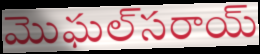
మొఘల్‌సరాయ్